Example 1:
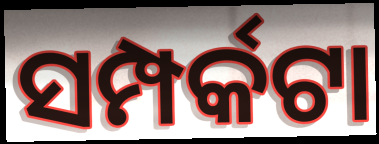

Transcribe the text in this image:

ସମ୍ପର୍କଟା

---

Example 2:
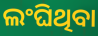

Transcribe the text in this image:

ଲଂଘିଥିବା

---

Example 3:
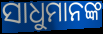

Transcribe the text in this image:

ସାଧୁମାନଙ୍କ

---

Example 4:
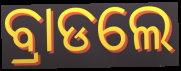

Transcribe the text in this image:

ବ୍ରାଡଲେ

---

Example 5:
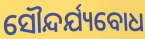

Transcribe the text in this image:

ସୌନ୍ଦର୍ଯ୍ୟବୋଧ